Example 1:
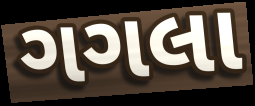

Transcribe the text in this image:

ગગલા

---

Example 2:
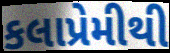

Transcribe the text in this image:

કલાપ્રેમીથી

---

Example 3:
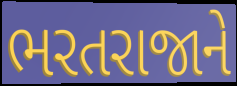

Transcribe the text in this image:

ભરતરાજાને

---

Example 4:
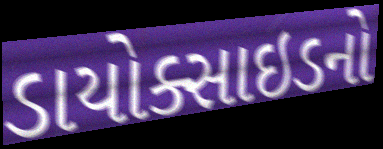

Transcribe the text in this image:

ડાયોક્સાઇડનો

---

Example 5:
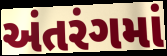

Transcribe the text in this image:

અંતરંગમાં